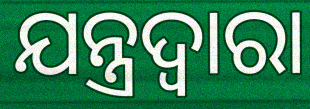
ଯନ୍ତ୍ରଦ୍ବାରା